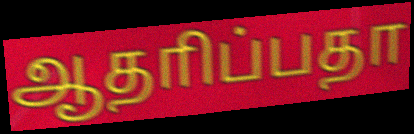
ஆதரிப்பதா